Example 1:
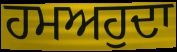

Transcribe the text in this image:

ਹਮਅਹੁਦਾ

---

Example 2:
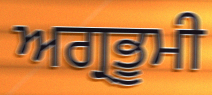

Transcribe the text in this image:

ਅਗ੍ਰਭੂਮੀ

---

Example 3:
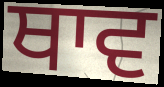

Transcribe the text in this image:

ਥਾਵ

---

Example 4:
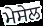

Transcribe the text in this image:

ਮੇਸੇਲ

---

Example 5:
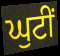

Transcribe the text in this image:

ਘੁਟੀਂ